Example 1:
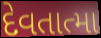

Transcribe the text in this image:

દેવતાત્મા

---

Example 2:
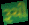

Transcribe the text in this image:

રૂચી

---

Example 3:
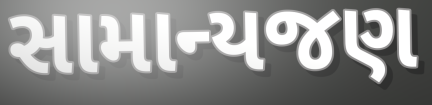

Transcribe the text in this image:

સામાન્યજણ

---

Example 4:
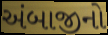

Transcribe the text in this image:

અંબાજીનો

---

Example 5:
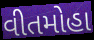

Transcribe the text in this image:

વીતમોહા